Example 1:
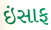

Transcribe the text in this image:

ઇંસાફ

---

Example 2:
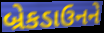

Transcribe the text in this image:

બ્રેકડાઉનને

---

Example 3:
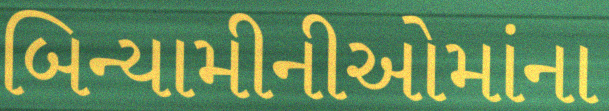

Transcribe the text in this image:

બિન્યામીનીઓમાંના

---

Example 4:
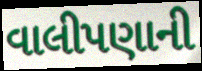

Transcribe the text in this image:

વાલીપણાની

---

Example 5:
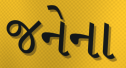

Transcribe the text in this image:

જનેના